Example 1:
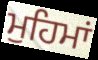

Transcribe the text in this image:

ਮੁਹਿਮਾਂ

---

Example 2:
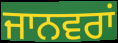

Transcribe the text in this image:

ਜਾਨਵਰਾਂ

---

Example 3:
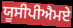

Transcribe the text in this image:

ਯੂਸੀਪੀਐਮਏ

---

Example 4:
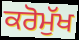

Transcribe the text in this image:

ਕਰੋਮੁੱਖ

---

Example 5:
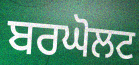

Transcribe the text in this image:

ਬਰਘੋਲਟ